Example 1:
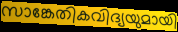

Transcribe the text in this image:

സാങ്കേതികവിദ്യയുമായി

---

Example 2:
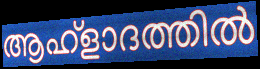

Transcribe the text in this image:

ആഹ്ളാദത്തിൽ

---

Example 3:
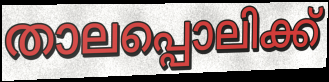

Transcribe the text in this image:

താലപ്പൊലിക്ക്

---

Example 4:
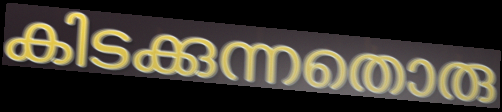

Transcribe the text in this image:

കിടക്കുന്നതൊരു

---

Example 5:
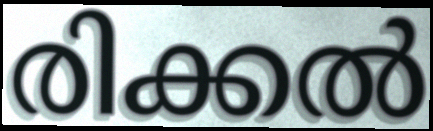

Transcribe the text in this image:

രിക്കൽ